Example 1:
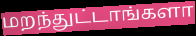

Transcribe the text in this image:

மறந்துட்டாங்களா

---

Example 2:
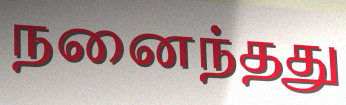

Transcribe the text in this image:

நனைந்தது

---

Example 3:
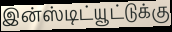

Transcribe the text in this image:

இன்ஸ்டிட்யூட்டுக்கு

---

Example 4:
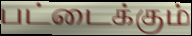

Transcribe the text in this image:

பட்டைக்கும்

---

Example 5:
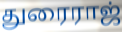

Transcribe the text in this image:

துரைராஜ்